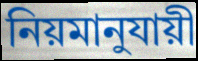
নিয়মানুযায়ী